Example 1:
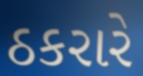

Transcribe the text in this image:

ઠકરારે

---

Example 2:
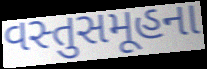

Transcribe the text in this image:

વસ્તુસમૂહના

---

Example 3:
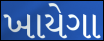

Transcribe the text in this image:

ખાયેગા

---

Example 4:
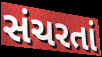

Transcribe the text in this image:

સંચરતાં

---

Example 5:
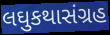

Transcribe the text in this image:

લઘુકથાસંગ્રહ